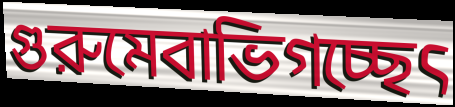
গুরুমেবাভিগচ্ছেৎ